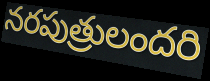
నరపుత్రులందరి